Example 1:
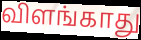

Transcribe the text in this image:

விளங்காது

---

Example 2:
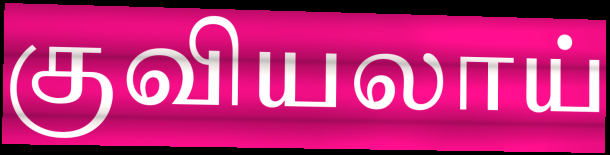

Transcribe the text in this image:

குவியலாய்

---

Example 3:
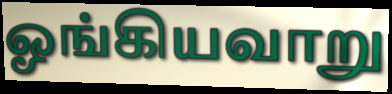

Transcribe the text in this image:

ஓங்கியவாறு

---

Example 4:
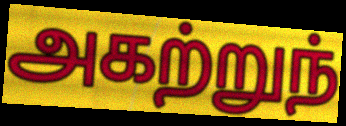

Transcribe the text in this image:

அகற்றுந்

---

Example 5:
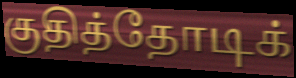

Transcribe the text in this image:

குதித்தோடிக்